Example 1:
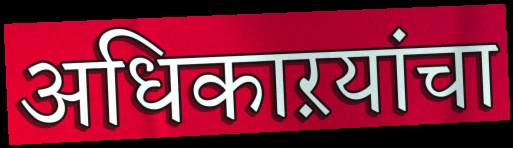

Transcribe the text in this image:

अधिकाऱयांचा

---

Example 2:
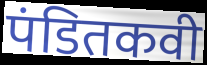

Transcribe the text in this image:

पंडितकवी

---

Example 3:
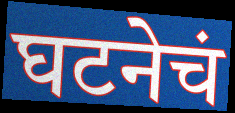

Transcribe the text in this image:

घटनेचं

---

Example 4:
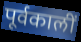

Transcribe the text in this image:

पूर्वकालीं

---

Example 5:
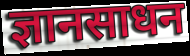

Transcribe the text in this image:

ज्ञानसाधन